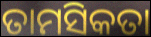
ତାମସିକତା